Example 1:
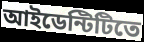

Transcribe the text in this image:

আইডেন্টিটিতে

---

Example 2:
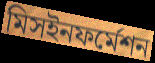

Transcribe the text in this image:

মিসইনফর্মেশন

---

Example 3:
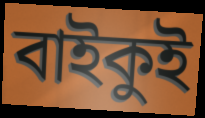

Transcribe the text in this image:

বাইকুই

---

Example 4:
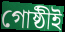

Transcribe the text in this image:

গোষ্ঠীই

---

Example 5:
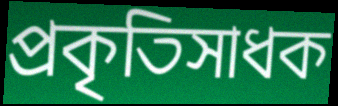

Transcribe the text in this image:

প্রকৃতিসাধক